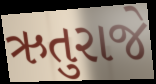
ઋતુરાજે